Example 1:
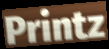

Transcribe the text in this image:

Printz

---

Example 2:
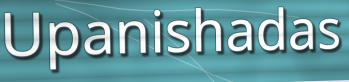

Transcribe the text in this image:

Upanishadas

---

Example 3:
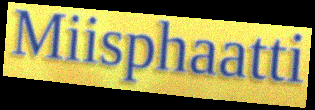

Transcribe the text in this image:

Miisphaatti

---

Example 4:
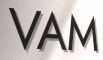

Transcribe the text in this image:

VAM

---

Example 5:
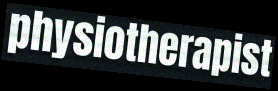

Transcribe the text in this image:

physiotherapist